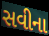
સવીના